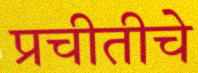
प्रचीतीचे